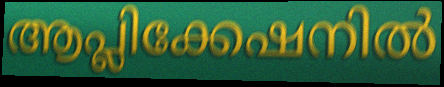
ആപ്ലിക്കേഷനിൽ